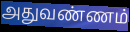
அதுவண்ணம்